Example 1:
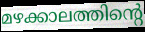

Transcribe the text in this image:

മഴക്കാലത്തിന്റെ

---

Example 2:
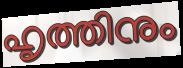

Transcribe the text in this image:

ഹൃത്തിനും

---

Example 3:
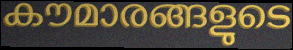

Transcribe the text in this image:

കൗമാരങ്ങളുടെ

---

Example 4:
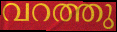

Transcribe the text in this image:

വറത്തു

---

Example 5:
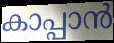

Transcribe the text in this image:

കാപ്പാൻ